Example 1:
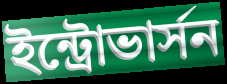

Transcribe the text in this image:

ইন্ট্রোভার্সন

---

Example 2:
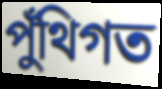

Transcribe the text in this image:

পুঁথিগত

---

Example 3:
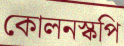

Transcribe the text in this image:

কোলনস্কপি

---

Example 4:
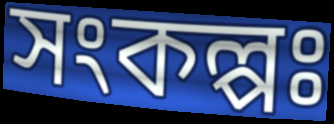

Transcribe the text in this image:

সংকল্পঃ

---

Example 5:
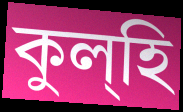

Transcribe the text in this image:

কুল্হি